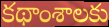
కథాంశాలకు